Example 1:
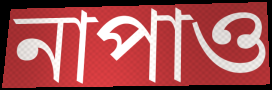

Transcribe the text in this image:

নাপাও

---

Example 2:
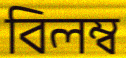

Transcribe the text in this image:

বিলম্ব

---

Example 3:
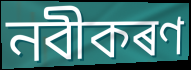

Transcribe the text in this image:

নবীকৰণ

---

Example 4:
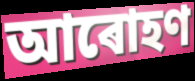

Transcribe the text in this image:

আৰোহণ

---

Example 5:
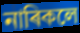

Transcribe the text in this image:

নাৰিকলে